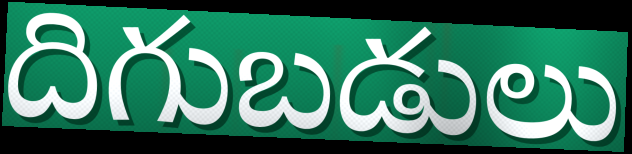
దిగుబడులు